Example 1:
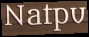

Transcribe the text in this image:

Natpu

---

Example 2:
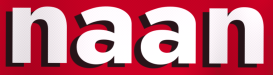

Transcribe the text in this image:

naan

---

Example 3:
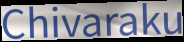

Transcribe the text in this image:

Chivaraku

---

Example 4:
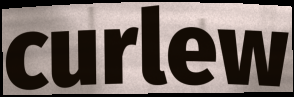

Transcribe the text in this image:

curlew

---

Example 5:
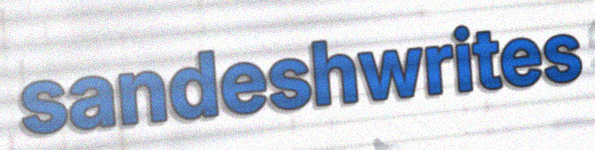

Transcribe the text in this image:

sandeshwrites